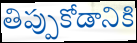
తిప్పుకోడానికి